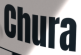
Chura